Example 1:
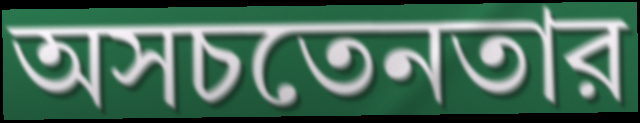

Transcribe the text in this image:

অসচতেনতার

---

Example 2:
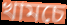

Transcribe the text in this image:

খামচে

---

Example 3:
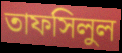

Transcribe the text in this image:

তাফসিলুল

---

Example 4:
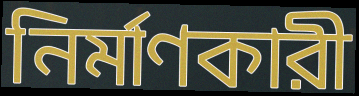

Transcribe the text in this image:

নির্মাণকারী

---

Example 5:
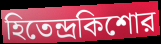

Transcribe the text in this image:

হিতেন্দ্রকিশোর